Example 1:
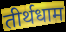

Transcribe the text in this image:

तीर्थधाम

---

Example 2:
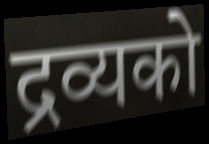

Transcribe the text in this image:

द्रव्यको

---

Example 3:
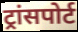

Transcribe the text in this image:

ट्रांसपोर्ट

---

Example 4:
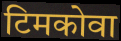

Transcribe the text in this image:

टिमकोवा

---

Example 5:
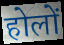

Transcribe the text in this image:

होलों